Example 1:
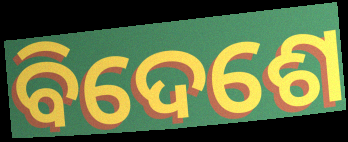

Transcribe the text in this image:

ବିଦେଶେ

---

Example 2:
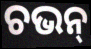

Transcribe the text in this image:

ଚଭନ୍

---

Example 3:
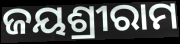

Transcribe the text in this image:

ଜୟଶ୍ରୀରାମ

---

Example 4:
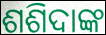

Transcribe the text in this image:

ଶଶିଦାଙ୍କ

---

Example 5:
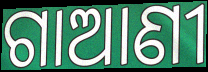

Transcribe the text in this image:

ଗାଆଣୀ